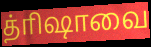
த்ரிஷாவை